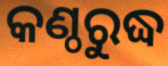
କଣ୍ଠରୁଦ୍ଧ